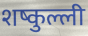
शष्कुल्ली